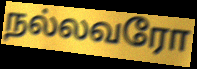
நல்லவரோ